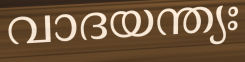
വാദയന്ത്യഃ